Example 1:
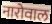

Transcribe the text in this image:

नारोवाल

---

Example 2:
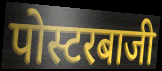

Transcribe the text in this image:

पोस्टरबाजी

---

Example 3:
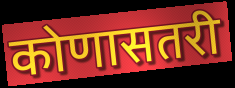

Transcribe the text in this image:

कोणासतरी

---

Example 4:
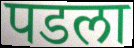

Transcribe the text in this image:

पडला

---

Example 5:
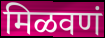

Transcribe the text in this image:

मिळवणं